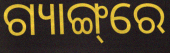
ଗ୍ୟାଙ୍ଗ୍‌ରେ